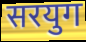
सरयुग